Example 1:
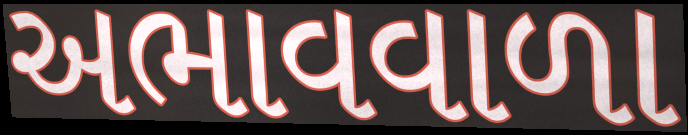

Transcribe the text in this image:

અભાવવાળા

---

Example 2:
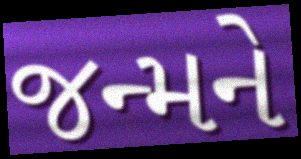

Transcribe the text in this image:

જન્મને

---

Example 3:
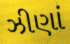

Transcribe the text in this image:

ઝીણાં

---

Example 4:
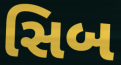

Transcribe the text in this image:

સિબ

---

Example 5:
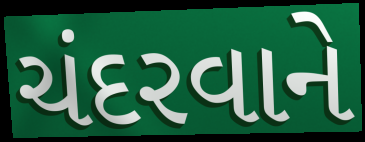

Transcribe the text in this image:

ચંદરવાને